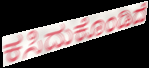
ಕಸಿದುಕೊಂಡಿದೆ